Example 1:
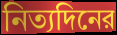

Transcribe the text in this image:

নিত্যদিনের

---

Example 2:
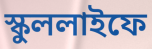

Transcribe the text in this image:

স্কুললাইফে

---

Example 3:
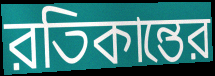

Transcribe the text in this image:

রতিকান্তের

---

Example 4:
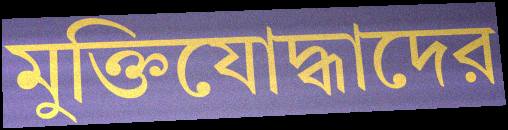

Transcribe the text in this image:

মুক্তিযোদ্ধাদের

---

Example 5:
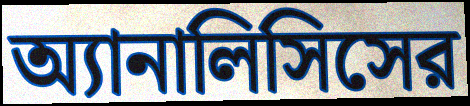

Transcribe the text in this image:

অ্যানালিসিসের